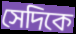
সেদিকে